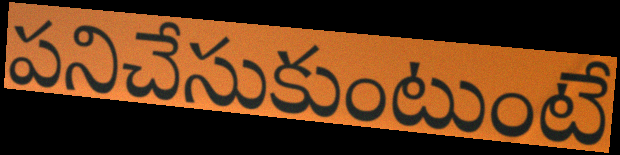
పనిచేసుకుంటుంటే